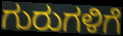
ಗುರುಗಳಿಗೆ